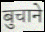
बुचाने